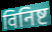
विनिष्ट